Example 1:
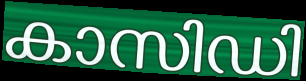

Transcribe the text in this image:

കാസിഡി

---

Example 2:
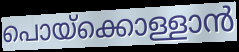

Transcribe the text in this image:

പൊയ്ക്കൊള്ളാൻ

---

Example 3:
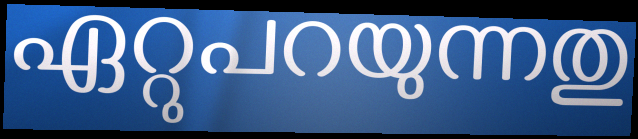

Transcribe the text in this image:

ഏറ്റുപറയുന്നതു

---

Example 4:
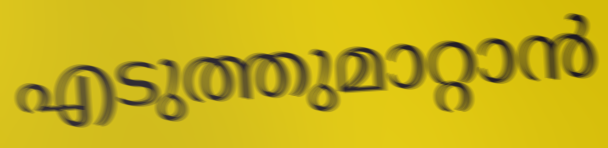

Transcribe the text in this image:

എടുത്തുമാറ്റാൻ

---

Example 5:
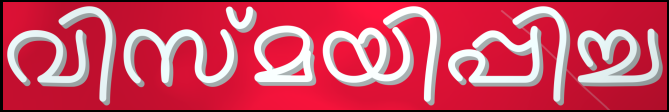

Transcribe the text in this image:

വിസ്മയിപ്പിച്ച